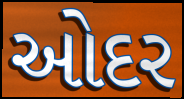
ઓદર